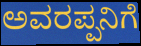
ಅವರಪ್ಪನಿಗೆ